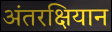
अंतरक्षियान